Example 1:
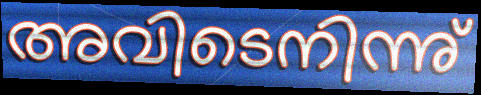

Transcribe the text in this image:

അവിടെനിന്നു്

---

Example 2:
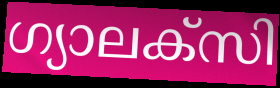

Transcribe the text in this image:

ഗ്യാലക്സി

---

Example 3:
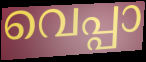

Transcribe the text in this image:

വെപ്പാ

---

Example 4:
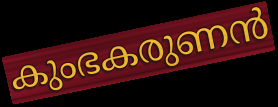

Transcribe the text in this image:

കുംഭകരുണൻ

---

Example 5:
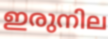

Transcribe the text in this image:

ഇരുനില